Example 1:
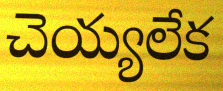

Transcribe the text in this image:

చెయ్యలేక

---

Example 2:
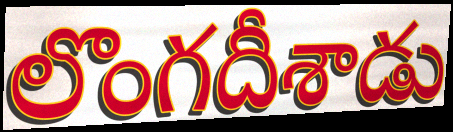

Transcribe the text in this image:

లొంగదీశాడు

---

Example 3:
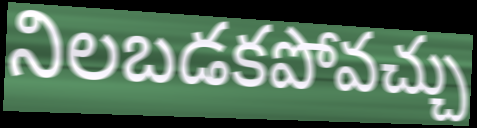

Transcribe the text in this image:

నిలబడకపోవచ్చు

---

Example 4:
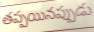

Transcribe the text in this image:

తప్పయినప్పుడు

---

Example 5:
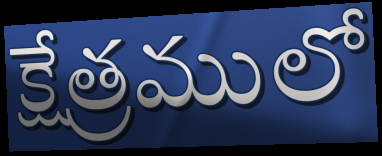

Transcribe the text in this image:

క్షేత్రములో